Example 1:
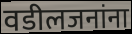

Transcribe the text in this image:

वडीलजनांना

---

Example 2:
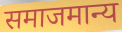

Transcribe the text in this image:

समाजमान्य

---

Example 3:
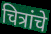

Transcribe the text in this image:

चित्रांचे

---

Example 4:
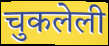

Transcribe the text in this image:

चुकलेली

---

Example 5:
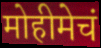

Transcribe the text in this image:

मोहीमेचं